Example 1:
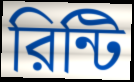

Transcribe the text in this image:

রিন্টি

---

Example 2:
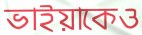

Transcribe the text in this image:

ভাইয়াকেও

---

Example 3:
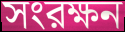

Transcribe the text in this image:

সংরক্ষন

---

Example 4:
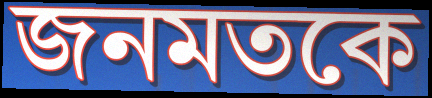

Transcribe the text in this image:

জনমতকে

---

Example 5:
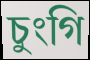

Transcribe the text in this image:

চুংগি